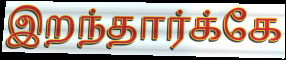
இறந்தார்க்கே